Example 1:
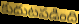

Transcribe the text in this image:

కుదుటపడింది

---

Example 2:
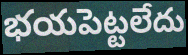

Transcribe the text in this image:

భయపెట్టలేదు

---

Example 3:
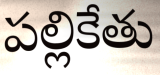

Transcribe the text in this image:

పల్లికేతు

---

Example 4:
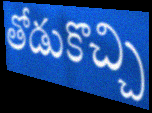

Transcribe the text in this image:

తోడుకొచ్చి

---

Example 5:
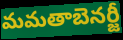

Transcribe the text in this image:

మమతాబెనర్జీ